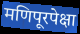
मणिपूरपेक्षा